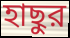
হাছুর